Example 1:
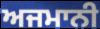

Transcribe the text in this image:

ਅਜਮਾਨੀ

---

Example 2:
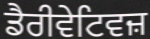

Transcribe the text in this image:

ਡੈਰੀਵੇਟਿਵਜ਼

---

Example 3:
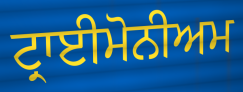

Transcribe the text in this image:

ਟ੍ਰਾਈਮੋਨੀਅਮ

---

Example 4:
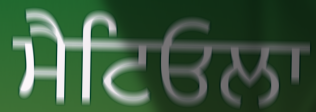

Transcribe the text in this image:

ਮੈਟਿਓਲਾ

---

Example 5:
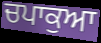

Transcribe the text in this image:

ਚਪਾਕੁਆ